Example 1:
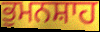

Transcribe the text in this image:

ਭੁਮਨਸ਼ਾਹ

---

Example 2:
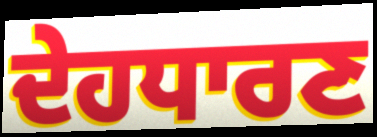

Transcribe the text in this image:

ਦੇਹਧਾਰਣ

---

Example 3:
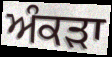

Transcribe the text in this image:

ਅੰਕੜਾ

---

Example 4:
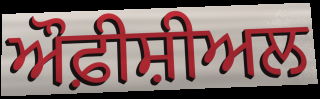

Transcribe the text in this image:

ਔਫ਼ੀਸ਼ੀਅਲ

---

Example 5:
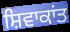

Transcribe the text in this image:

ਸ਼ਿਵਾਕਾਂਤ